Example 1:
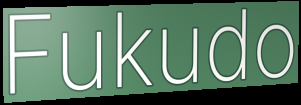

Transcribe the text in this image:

Fukudo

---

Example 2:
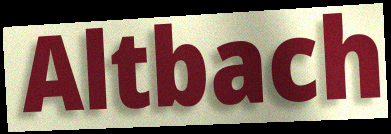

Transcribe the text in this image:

Altbach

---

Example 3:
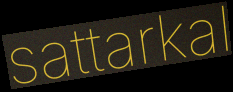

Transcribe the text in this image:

sattarkal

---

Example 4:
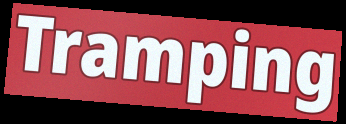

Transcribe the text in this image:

Tramping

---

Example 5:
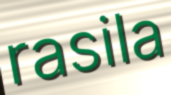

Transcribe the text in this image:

rasila